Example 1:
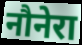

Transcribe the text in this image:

नौनेरा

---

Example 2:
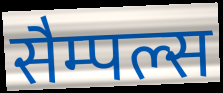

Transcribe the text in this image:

सैम्‍पल्‍स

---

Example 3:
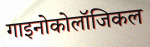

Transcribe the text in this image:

गाइनोकोलॉजिकल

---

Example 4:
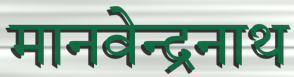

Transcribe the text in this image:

मानवेन्द्रनाथ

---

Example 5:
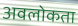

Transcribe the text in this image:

अवलोकता